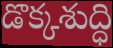
డొక్కశుద్ధి